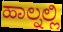
ಹಾಲ್ನಲ್ಲಿ